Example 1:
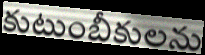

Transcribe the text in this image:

కుటుంబీకులను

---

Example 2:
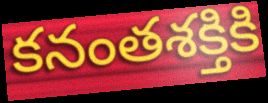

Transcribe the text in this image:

కనంతశక్తికి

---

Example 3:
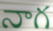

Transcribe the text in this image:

నాగ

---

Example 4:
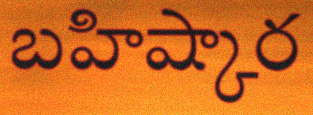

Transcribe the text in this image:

బహిష్కార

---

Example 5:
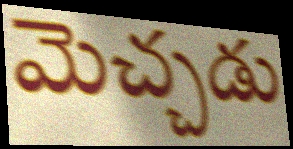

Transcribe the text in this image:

మెచ్చడు